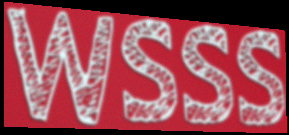
WSSS